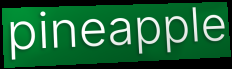
pineapple